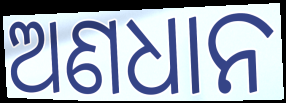
ଅଣଧାନ